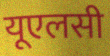
यूएलसी